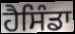
ਹੈਸਿੰਡਾ